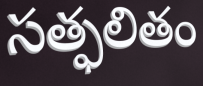
సత్ఫలితం